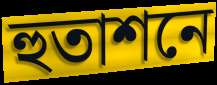
হুতাশনে